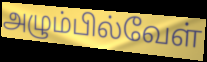
அழும்பில்வேள்